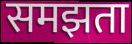
समझता